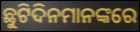
ଛୁଟିଦିନମାନଙ୍କରେ